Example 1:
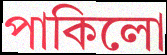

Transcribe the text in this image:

পাকিলো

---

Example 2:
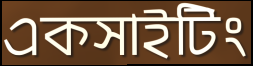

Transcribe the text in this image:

একসাইটিং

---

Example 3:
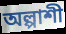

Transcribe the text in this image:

অল্পাশী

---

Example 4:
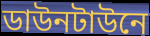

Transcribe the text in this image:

ডাউনটাউনে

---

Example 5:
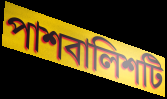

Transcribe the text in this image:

পাশবালিশটি